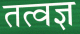
तत्वज्ञ